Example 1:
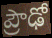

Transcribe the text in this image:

ప్రౌఢో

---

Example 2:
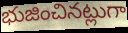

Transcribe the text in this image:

భుజించినట్లుగా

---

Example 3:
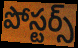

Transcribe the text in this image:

పోస్టర్స్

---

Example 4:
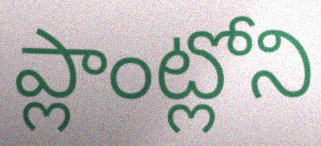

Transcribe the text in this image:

ప్లాంట్లోని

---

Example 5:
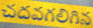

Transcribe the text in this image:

చదవగలిగిన